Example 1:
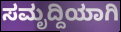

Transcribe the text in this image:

ಸಮೃದ್ದಿಯಾಗಿ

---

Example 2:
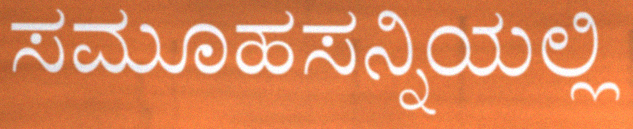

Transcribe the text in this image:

ಸಮೂಹಸನ್ನಿಯಲ್ಲಿ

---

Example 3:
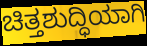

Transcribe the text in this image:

ಚಿತ್ತಶುದ್ಧಿಯಾಗಿ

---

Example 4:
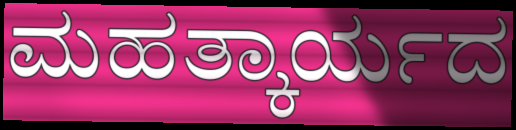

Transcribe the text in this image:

ಮಹತ್ಕಾರ್ಯದ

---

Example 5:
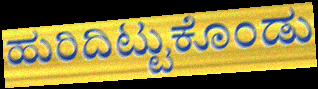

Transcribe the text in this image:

ಹುರಿದಿಟ್ಟುಕೊಂಡು